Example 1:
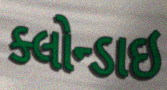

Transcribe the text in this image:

ક્લોન્ડાઇ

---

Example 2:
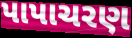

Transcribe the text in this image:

પાપાચરણ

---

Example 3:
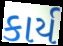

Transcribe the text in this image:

કાર્ય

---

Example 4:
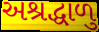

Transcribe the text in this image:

અશ્રદ્ધાળુ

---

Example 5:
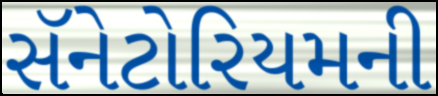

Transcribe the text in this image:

સૅનેટોરિયમની